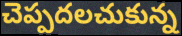
చెప్పదలచుకున్న